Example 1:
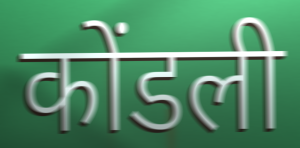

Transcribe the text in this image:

कोंडली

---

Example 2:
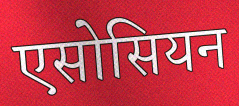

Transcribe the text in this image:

एसोसियन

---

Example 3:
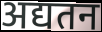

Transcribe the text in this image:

अद्यतन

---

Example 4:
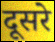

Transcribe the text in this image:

दूसरे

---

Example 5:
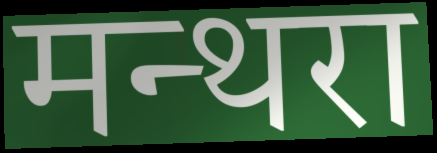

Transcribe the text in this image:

मन्थरा